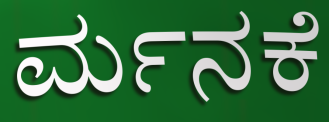
ರ್ಮನಕೆ